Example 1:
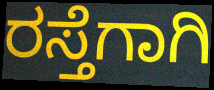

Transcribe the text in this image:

ರಸ್ತೆಗಾಗಿ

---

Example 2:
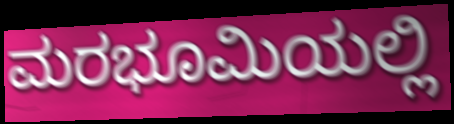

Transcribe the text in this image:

ಮರಭೂಮಿಯಲ್ಲಿ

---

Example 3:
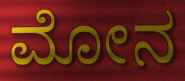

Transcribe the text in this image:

ಮೋನ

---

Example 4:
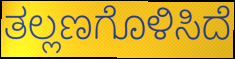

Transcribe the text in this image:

ತಲ್ಲಣಗೊಳಿಸಿದೆ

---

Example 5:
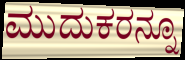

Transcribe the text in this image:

ಮುದುಕರನ್ನೂ